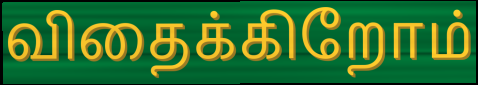
விதைக்கிறோம்